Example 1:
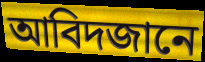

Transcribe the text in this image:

আবিদজানে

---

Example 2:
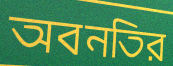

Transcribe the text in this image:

অবনতির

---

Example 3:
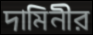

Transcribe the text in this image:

দামিনীর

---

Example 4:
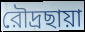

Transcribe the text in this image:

রৌদ্রছায়া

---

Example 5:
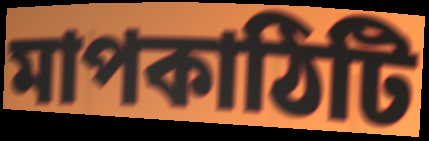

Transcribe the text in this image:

মাপকাঠিটি